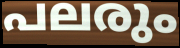
പലരും